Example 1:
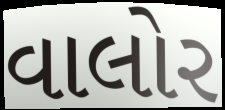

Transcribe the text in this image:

વાલોર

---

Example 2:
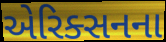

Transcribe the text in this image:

એરિક્સનના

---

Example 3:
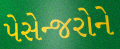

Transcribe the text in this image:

પેસેન્જરોને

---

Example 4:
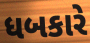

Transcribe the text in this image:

ધબકારે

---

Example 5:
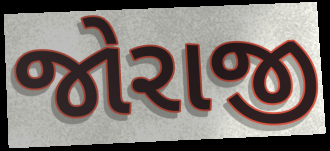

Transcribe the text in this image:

જોરાજી